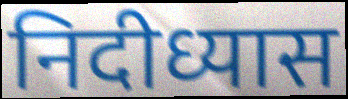
निदीध्यास